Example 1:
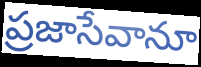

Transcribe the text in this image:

ప్రజాసేవానూ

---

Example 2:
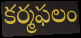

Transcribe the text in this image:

కర్మఫలం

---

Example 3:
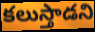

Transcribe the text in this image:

కలుస్తాడని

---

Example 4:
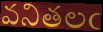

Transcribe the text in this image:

వనితలఁ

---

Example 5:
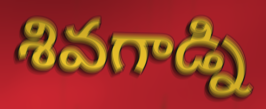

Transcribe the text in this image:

శివగాడ్ని